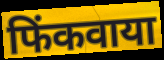
फिंकवाया